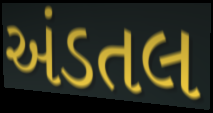
અંડતલ